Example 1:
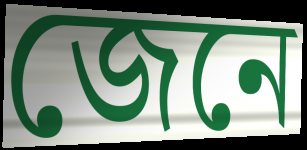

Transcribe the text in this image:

জেনে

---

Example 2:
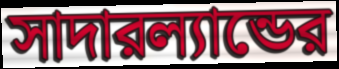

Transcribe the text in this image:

সাদারল্যান্ডের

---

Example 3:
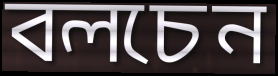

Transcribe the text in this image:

বলচেন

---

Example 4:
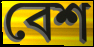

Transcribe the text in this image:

বেশ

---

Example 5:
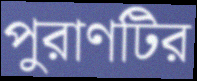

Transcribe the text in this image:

পুরাণটির